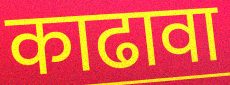
काढावा